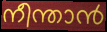
നീന്താൻ